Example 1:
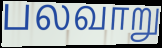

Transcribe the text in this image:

பலவாறு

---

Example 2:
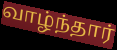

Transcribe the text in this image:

வாழ்ந்தார்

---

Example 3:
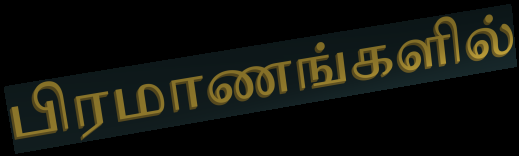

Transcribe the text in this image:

பிரமாணங்களில்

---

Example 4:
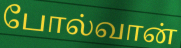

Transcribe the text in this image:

போல்வான்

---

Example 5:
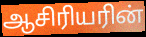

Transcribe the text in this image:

ஆசிரியரின்